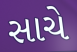
સાચે